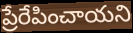
ప్రేరేపించాయని